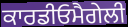
ਕਾਰਡੀਓਮੈਗੇਲੀ